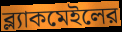
ব্ল্যাকমেইলের